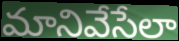
మానివేసేలా